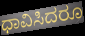
ಧಾವಿಸಿದರೂ